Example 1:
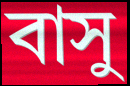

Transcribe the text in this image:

বাসু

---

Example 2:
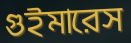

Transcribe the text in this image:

গুইমারেস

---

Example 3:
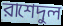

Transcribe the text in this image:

রাশেদুল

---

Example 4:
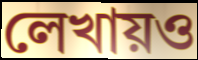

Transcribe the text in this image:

লেখায়ও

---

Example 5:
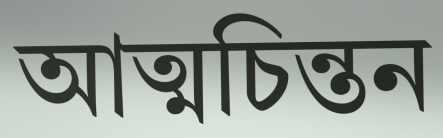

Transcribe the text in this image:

আত্মচিন্তন